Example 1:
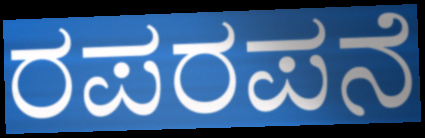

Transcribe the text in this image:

ರಪರಪನೆ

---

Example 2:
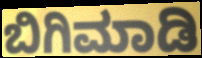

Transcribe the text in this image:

ಬಿಗಿಮಾಡಿ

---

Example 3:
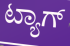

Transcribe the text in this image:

ಟ್ಯಾಗ್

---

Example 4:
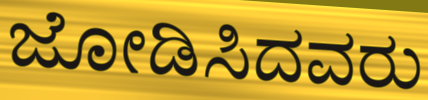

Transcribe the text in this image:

ಜೋಡಿಸಿದವರು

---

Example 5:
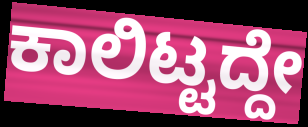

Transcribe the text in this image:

ಕಾಲಿಟ್ಟದ್ದೇ